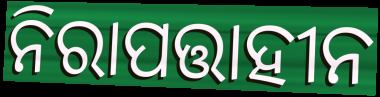
ନିରାପତ୍ତାହୀନ